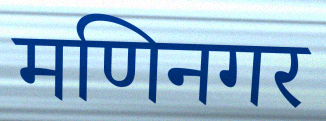
मणिनगर